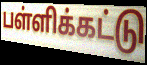
பள்ளிக்கட்டு